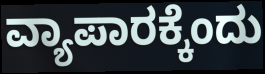
ವ್ಯಾಪಾರಕ್ಕೆಂದು